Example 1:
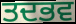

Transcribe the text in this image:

ਤਦਭਵ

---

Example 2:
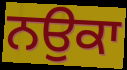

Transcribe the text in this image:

ਨਉਕਾ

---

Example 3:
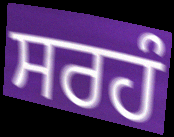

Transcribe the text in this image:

ਸਰਹੰ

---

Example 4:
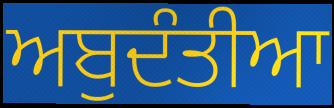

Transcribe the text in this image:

ਅਬੁਦੰਤੀਆ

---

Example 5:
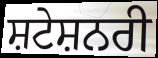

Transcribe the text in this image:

ਸ਼ਟੇਸ਼ਨਰੀ